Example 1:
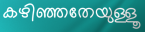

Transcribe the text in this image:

കഴിഞ്ഞതേയുള്ളൂ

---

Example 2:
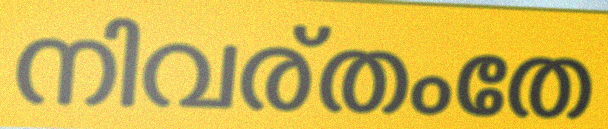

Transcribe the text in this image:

നിവര്തംതേ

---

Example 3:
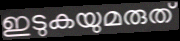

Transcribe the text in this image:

ഇടുകയുമരുത്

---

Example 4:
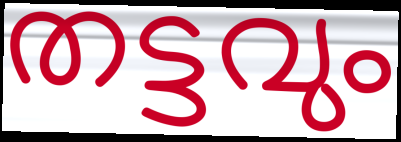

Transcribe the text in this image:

തട്ടവും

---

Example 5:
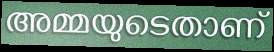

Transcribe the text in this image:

അമ്മയുടെതാണ്